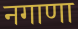
नगाणा